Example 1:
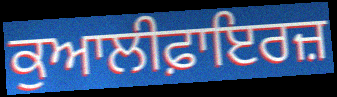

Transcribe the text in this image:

ਕੁਆਲੀਫ਼ਾਇਰਜ਼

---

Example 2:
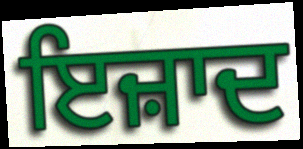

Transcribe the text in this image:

ਇਜ਼ਾਦ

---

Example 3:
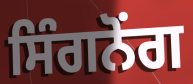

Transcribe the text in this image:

ਸਿੰਗਨੋਂਗ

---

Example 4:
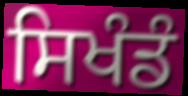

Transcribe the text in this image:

ਸਿਖੰਡੰ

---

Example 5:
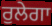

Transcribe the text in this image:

ਰੁਲੇਗਾ